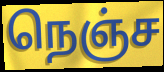
நெஞ்ச